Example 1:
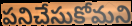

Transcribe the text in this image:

పనిచేసుకోమని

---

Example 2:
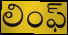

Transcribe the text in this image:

లింఫ్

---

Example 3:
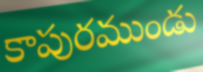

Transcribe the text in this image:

కాపురముండు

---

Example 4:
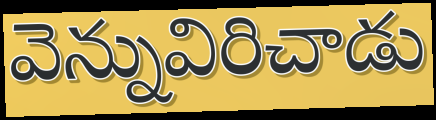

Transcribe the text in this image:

వెన్నువిరిచాడు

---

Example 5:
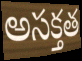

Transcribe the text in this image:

అసక్తత